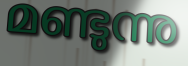
മണ്ടുന്നു